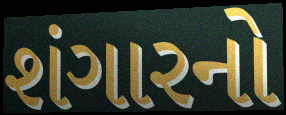
શંગારનો